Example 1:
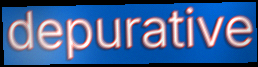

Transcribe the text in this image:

depurative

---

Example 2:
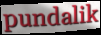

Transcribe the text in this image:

pundalik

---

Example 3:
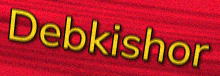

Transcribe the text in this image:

Debkishor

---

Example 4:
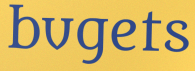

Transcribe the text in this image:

bugets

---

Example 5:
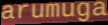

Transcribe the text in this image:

arumuga